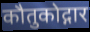
कौतुकोद्गार